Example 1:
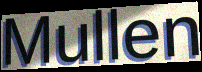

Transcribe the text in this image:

Mullen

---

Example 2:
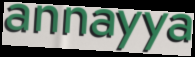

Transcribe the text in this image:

annayya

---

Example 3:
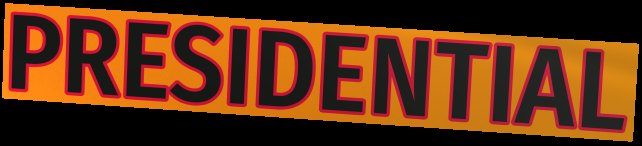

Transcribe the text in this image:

PRESIDENTIAL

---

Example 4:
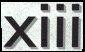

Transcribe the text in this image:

xiii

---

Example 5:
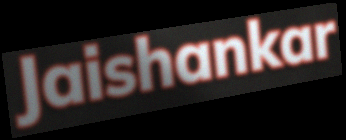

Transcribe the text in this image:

Jaishankar